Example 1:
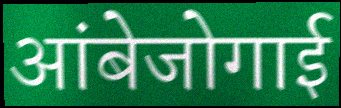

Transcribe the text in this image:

आंबेजोगाई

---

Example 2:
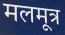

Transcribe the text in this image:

मलमूत्र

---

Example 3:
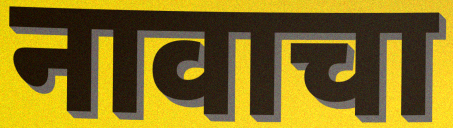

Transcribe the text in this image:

नावाचा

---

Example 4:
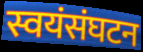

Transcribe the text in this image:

स्वयंसंघटन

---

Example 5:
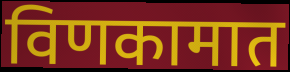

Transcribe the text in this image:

विणकामात